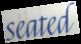
seated